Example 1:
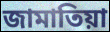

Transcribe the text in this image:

জামাতিয়া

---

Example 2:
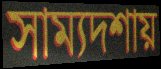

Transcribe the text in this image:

সাম্যদশায়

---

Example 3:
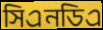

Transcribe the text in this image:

সিএনডিএ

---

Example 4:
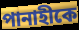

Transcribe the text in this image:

পানাহীকে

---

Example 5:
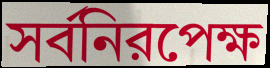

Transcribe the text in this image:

সর্বনিরপেক্ষ